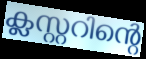
ക്ലസ്റ്ററിന്റെ